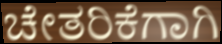
ಚೇತರಿಕೆಗಾಗಿ